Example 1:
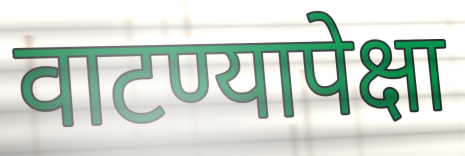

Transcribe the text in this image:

वाटण्यापेक्षा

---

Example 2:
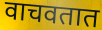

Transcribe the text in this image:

वाचवतात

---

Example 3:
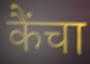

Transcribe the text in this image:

कैंचा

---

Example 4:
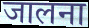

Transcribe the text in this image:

जालना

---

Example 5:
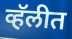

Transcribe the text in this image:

व्हॅलीत